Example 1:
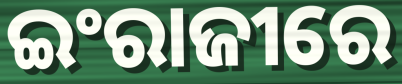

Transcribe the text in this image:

ଇଂରାଜୀରେ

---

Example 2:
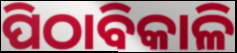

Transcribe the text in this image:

ପିଠାବିକାଳି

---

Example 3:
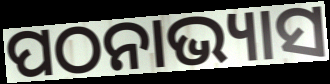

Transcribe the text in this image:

ପଠନାଭ୍ୟାସ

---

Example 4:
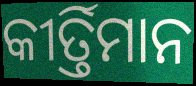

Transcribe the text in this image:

କୀର୍ତ୍ତିମାନ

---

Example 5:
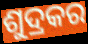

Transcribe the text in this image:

ଶୁଦ୍ରକର